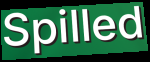
Spilled